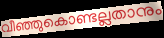
വീഞ്ഞുകൊണ്ടല്ലതാനും